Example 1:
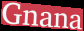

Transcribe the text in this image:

Gnana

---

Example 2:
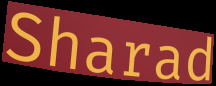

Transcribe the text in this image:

Sharad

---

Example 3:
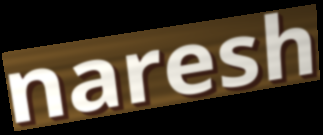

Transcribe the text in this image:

naresh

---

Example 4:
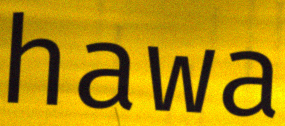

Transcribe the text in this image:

hawa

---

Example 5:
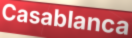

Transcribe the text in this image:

Casablanca